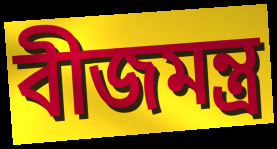
বীজমন্ত্র